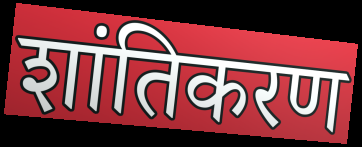
शांतिकरण